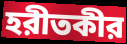
হরীতকীর